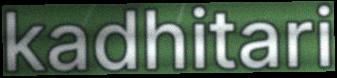
kadhitari